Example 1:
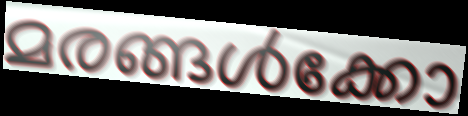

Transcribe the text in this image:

മരങ്ങൾക്കോ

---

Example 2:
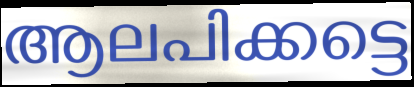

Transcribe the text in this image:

ആലപിക്കട്ടെ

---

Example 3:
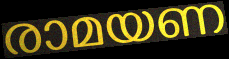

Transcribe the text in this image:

രാമയണ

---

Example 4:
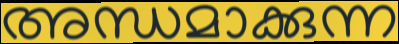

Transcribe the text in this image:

അന്ധമാക്കുന്ന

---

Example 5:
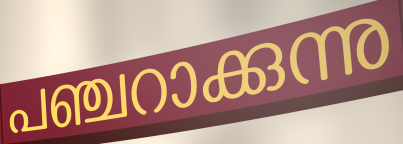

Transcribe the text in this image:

പഞ്ചറാക്കുന്നു